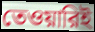
তেওয়ারিই